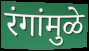
रंगांमुळे